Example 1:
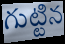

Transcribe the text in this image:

గుట్టిన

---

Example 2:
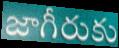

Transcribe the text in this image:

జాగీరుకు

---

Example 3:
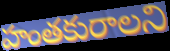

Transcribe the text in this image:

హంతకురాలని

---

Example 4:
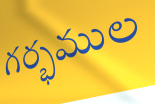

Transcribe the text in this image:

గర్భముల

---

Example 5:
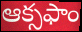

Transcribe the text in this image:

ఆక్సఫాం